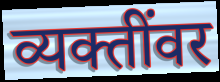
व्यक्तींवर